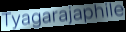
Tyagarajaphile